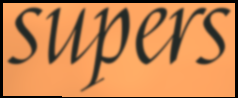
supers